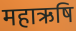
महाऋषि